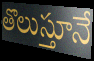
తొలుస్తూనే